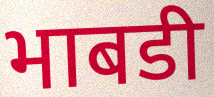
भाबडी